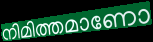
നിമിത്തമാണോ